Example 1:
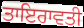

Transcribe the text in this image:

ਤਾਇਰਾਵਤੀ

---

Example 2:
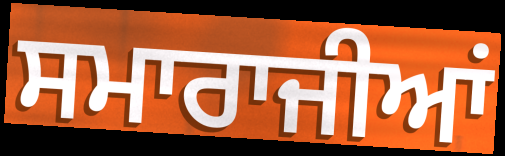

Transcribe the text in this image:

ਸਮਾਰਾਜੀਆਂ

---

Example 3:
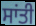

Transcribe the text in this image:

ਸਾਂਤੀ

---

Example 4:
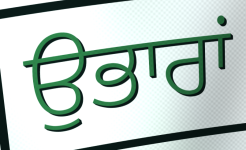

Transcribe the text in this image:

ਉਭਾਰਾਂ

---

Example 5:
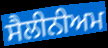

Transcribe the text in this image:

ਸੈਲੀਨੀਅਮ